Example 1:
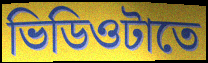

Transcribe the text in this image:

ভিডিওটাতে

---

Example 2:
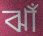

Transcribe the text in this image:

ঝাঁ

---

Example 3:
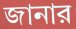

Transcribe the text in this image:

জানার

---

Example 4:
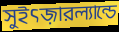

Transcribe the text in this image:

সুইৎজ়ারল্যান্ডে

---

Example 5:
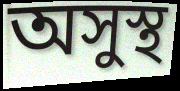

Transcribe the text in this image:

অসুস্থ